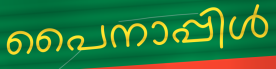
പൈനാപ്പിൾ